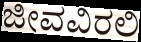
ಜೀವವಿರಲಿ